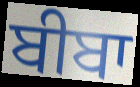
ਬੀਬਾ